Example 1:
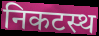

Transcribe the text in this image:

निकटस्‍थ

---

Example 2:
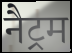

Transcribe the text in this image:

नैट्रम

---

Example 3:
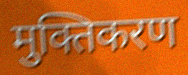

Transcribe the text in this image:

मुक्तिकरण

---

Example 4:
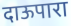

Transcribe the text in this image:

दाऊपारा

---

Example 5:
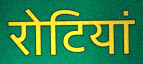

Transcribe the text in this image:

रोटियां